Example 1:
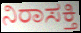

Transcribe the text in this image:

ನಿರಾಸಕ್ತಿ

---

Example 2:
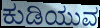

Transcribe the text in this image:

ಕುಡಿಯುವ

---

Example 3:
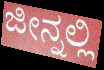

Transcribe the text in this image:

ಜೀನ್ನಲ್ಲಿ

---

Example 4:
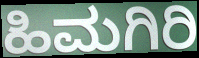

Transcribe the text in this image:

ಹಿಮಗಿರಿ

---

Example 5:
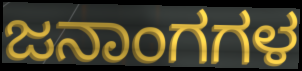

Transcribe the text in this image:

ಜನಾಂಗಗಳ